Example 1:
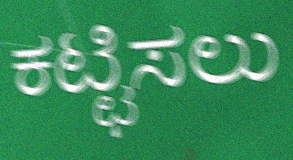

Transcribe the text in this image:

ಕಟ್ಟಿಸಲು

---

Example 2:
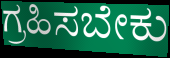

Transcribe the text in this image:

ಗ್ರಹಿಸಬೇಕು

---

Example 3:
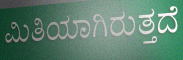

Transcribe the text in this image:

ಮಿತಿಯಾಗಿರುತ್ತದೆ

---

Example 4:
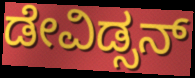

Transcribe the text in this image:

ಡೇವಿಡ್ಸನ್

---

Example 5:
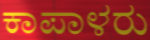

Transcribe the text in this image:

ಕಾಪಾಳರು